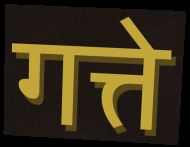
गत्ते